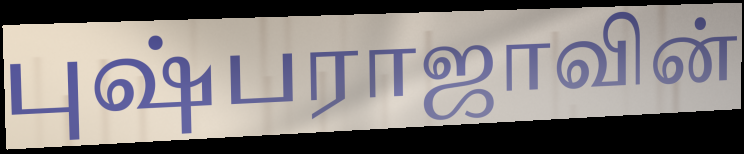
புஷ்பராஜாவின்